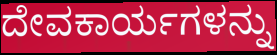
ದೇವಕಾರ್ಯಗಳನ್ನು